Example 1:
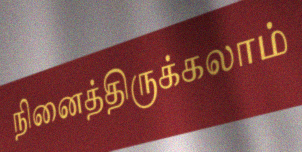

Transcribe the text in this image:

நினைத்திருக்கலாம்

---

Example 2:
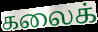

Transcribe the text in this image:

கலைக்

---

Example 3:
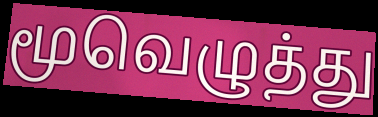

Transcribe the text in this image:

மூவெழுத்து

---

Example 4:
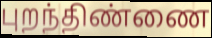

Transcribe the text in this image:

புறந்திண்ணை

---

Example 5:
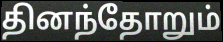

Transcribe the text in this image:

தினந்தோறும்